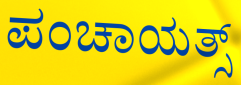
ಪಂಚಾಯತ್ಸ್